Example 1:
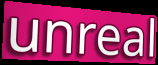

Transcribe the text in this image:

unreal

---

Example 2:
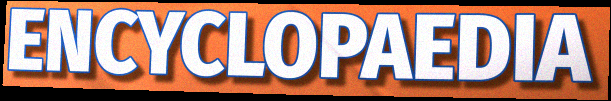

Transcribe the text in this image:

ENCYCLOPAEDIA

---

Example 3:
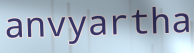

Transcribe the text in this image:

anvyartha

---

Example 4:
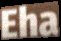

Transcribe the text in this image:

Eha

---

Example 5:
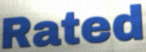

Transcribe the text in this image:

Rated